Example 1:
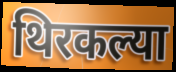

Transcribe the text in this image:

थिरकल्या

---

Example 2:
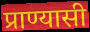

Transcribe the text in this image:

प्राण्यासी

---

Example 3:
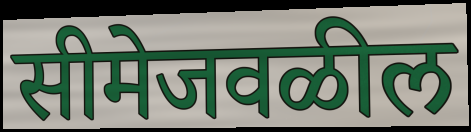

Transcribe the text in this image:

सीमेजवळील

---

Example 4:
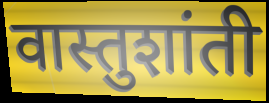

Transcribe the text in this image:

वास्तुशांती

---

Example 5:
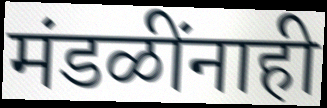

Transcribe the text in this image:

मंडळींनाही